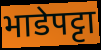
भाडेपट्टा